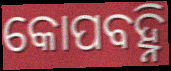
କୋପବହ୍ନି